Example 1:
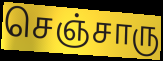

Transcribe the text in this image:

செஞ்சாரு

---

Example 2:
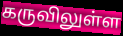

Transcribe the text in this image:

கருவிலுள்ள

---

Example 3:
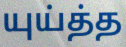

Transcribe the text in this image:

யுய்த்த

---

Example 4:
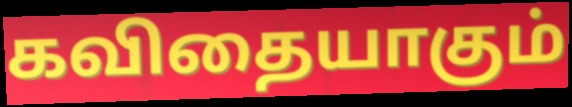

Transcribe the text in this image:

கவிதையாகும்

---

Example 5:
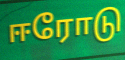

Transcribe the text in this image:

ஈரோடு